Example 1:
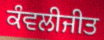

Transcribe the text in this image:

ਕੰਵਲੀਜੀਤ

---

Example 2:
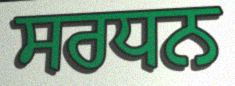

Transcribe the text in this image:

ਸਰਧਨ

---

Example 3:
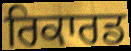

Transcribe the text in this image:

ਰਿਕਾਰਡ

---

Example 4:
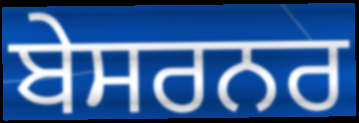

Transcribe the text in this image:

ਬੇਸਰਨਰ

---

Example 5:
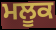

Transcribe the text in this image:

ਮਲੂਕ